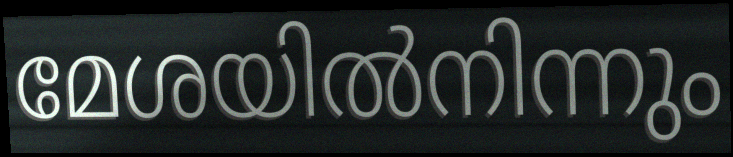
മേശയിൽനിന്നും